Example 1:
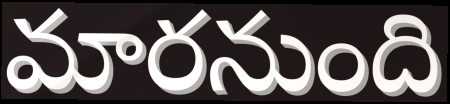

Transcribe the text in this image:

మారనుంది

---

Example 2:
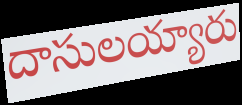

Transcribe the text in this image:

దాసులయ్యారు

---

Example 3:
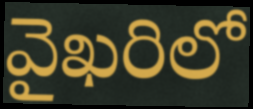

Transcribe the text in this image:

వైఖరిలో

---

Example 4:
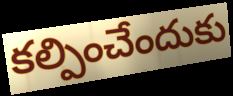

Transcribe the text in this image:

కల్పించేందుకు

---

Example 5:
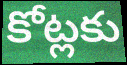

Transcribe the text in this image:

కోట్లకు